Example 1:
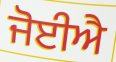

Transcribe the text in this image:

ਜੋਈਐ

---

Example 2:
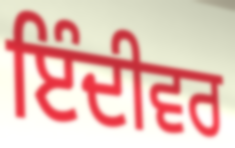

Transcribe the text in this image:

ਇੰਦੀਵਰ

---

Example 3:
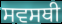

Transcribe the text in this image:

ਸਵਸਥੀ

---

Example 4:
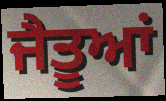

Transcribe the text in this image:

ਜੈਤੂਆਂ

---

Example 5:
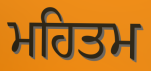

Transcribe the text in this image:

ਮਹਿਤਮ